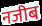
नजीब